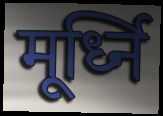
मूर्ध्नि